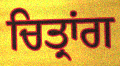
ਚਿਤ੍ਰਾਂਗ